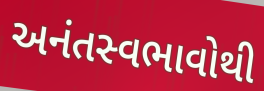
અનંતસ્વભાવોથી